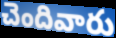
చెందివారు